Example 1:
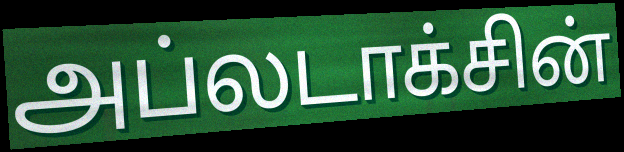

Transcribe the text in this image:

அப்லடாக்சின்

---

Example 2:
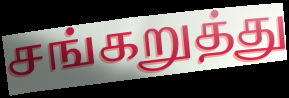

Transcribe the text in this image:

சங்கறுத்து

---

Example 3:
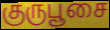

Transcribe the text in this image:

குருபூசை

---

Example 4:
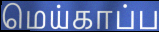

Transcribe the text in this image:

மெய்காப்ப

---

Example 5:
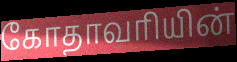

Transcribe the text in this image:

கோதாவரியின்